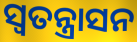
ସ୍ଵତନ୍ତ୍ରାସନ